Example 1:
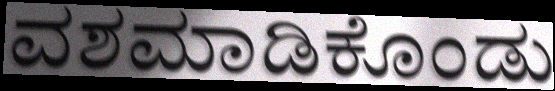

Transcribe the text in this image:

ವಶಮಾಡಿಕೊಂಡು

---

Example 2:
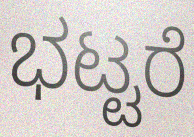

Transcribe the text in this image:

ಭಟ್ಟರೆ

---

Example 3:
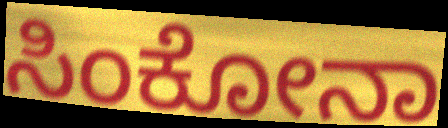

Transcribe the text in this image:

ಸಿಂಕೋನಾ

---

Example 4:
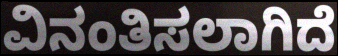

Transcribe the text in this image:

ವಿನಂತಿಸಲಾಗಿದೆ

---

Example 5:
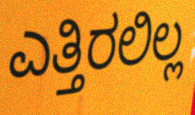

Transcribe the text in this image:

ಎತ್ತಿರಲಿಲ್ಲ